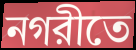
নগরীতে